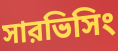
সারভিসিং